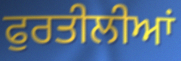
ਫੁਰਤੀਲੀਆਂ